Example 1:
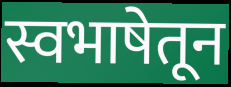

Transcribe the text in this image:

स्वभाषेतून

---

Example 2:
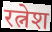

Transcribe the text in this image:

रत्नेश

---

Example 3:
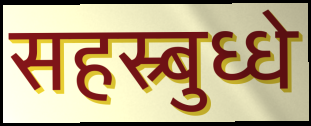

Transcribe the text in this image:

सहस्र्बुध्धे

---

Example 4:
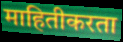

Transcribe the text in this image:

माहितीकरता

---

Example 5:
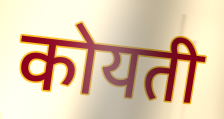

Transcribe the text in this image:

कोयती